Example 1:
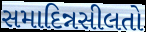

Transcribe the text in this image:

સમાદિન્નસીલતો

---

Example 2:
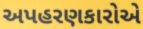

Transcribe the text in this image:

અપહરણકારોએ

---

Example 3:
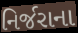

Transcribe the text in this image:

નિર્જરાના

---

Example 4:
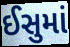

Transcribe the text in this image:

ઈસુમાં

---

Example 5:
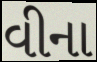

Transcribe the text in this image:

વીના